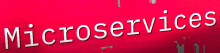
Microservices